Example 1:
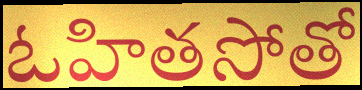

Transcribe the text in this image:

ఓహితసోతో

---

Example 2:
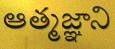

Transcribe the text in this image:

ఆత్మజ్ఞాని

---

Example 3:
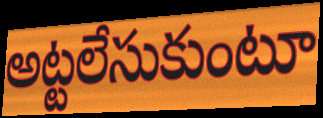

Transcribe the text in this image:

అట్టలేసుకుంటూ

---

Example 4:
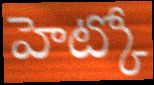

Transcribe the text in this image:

హెట్కో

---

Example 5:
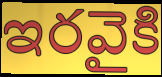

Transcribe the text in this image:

ఇరవైకి